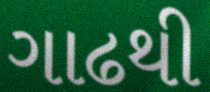
ગાઢથી